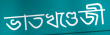
ভাতখণ্ডেজী